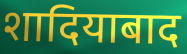
शादियाबाद